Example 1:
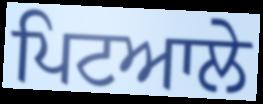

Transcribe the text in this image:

ਪਿਟਆਲੇ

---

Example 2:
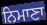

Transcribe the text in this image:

ਨਿਮਾਣਾ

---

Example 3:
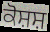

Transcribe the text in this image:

ਕੋਸ਼ਸ਼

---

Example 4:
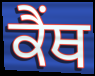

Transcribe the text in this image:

ਕੈਂਥ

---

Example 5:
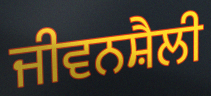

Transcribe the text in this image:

ਜੀਵਨਸ਼ੈਲੀ